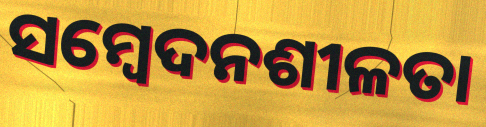
ସମ୍ଵେଦନଶୀଳତା